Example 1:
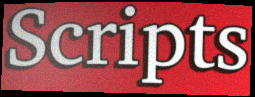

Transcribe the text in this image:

Scripts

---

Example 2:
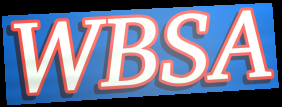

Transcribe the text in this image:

WBSA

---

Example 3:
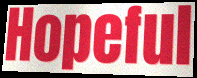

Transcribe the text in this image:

Hopeful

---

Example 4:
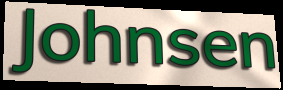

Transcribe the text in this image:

Johnsen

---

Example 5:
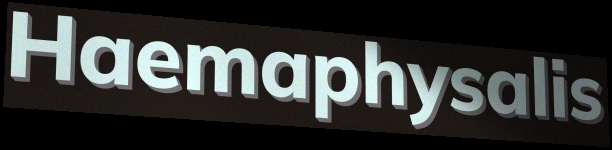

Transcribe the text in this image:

Haemaphysalis